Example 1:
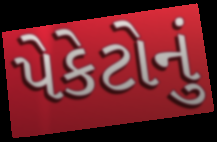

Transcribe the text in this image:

પેકેટોનું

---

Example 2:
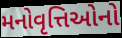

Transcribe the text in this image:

મનોવૃત્તિઓનો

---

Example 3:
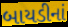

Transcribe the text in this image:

બાયડીનાં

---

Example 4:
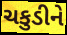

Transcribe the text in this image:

ચકુડીને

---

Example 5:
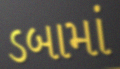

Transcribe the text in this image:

ડબામાં